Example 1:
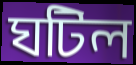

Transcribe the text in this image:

ঘটিল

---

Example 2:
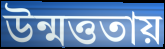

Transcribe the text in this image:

উন্মত্ততায়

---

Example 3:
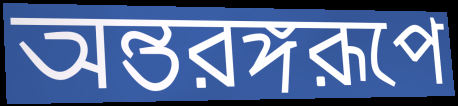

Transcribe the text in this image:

অন্তরঙ্গরূপে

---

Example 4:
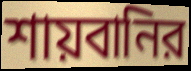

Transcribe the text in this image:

শায়বানির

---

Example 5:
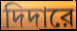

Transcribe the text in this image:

দিদারে